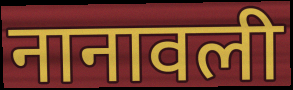
नानावली